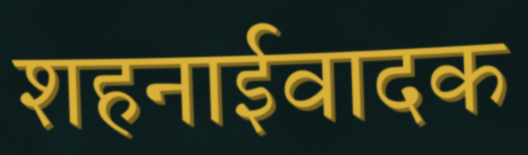
शहनाईवादक